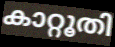
കാറ്റൂതി